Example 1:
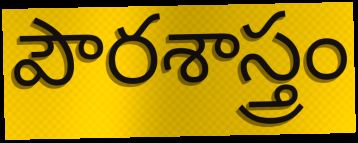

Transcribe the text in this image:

పౌరశాస్త్రం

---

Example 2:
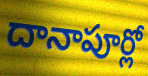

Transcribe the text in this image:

దానాపూర్లో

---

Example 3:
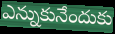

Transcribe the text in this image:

ఎన్నుకునేందుకు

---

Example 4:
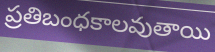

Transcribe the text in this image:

ప్రతిబంధకాలవుతాయి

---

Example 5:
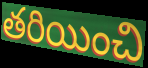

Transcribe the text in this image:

తరియించి